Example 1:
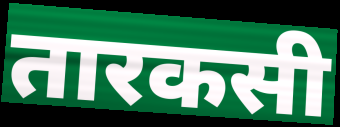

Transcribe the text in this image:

तारकसी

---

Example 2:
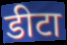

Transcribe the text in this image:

डीटा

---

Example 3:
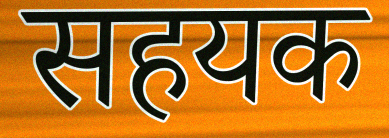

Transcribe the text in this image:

सहयक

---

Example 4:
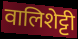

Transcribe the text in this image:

वालिशेट्टी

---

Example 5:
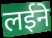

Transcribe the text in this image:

लईने